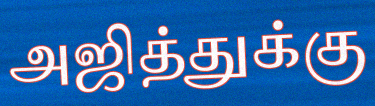
அஜித்துக்கு